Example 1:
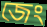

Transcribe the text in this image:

জেং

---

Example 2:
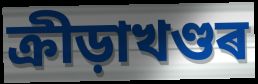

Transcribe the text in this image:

ক্ৰীড়াখণ্ডৰ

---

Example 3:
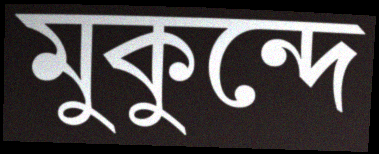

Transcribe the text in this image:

মুকুন্দে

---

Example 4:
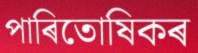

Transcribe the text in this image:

পাৰিতোষিকৰ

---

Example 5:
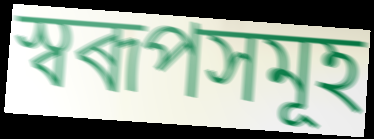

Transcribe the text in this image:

স্বৰূপসমূহ